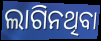
ଲାଗିନଥିବା